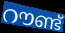
റൗണ്ട്